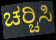
ಚರ‍್ಚಿಸಿ